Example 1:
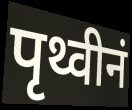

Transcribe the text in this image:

पृथ्वीनं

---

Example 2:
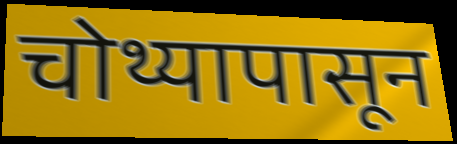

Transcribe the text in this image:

चोथ्यापासून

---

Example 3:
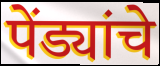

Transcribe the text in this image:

पेंड्यांचे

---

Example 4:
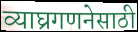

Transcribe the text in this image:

व्याघ्रगणनेसाठी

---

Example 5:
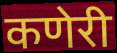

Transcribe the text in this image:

कणेरी